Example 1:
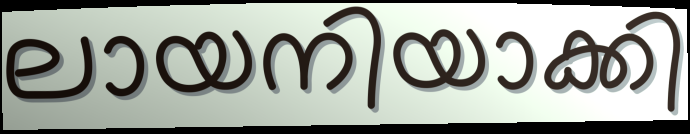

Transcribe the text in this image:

ലായനിയാക്കി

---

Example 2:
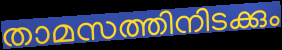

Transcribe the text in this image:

താമസത്തിനിടക്കും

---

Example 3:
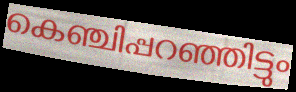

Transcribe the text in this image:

കെഞ്ചിപ്പറഞ്ഞിട്ടും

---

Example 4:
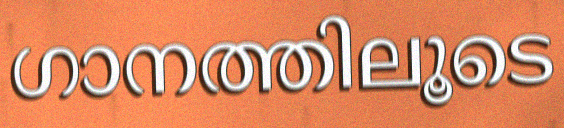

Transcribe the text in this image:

ഗാനത്തിലൂടെ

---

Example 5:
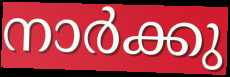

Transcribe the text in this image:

നാർക്കു